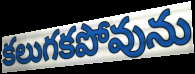
కలుగకపోవును